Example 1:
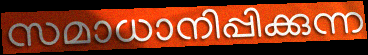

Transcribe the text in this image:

സമാധാനിപ്പിക്കുന്ന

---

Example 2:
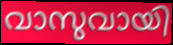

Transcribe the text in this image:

വാസുവായി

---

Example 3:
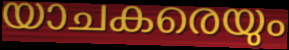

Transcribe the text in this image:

യാചകരെയും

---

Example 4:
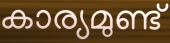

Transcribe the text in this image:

കാര്യമുണ്ട്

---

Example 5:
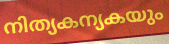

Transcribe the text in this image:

നിത്യകന്യകയും